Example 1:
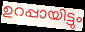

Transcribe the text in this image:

ഉറപ്പായിട്ടും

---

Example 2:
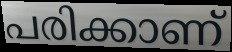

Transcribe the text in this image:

പരിക്കാണ്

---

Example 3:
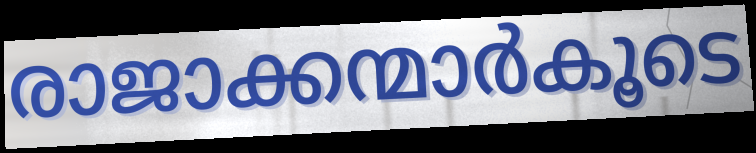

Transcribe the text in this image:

രാജാക്കന്മാർകൂടെ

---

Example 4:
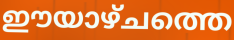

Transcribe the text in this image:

ഈയാഴ്ചത്തെ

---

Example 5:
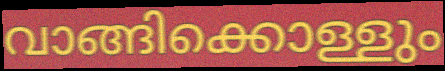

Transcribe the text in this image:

വാങ്ങിക്കൊള്ളും